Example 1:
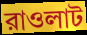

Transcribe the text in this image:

রাওলাট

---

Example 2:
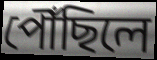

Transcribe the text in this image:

পৌঁছিলে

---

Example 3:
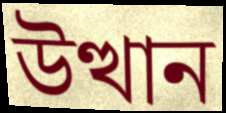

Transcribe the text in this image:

উত্থান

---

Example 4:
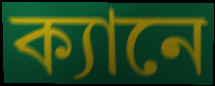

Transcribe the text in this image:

ক্যানে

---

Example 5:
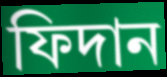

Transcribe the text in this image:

ফিদান